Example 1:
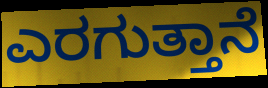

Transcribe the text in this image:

ಎರಗುತ್ತಾನೆ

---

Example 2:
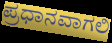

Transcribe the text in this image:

ಪ್ರಧಾನವಾಗಲಿ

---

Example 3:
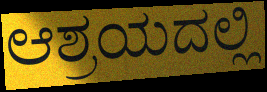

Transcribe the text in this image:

ಆಶ್ರಯದಲ್ಲಿ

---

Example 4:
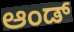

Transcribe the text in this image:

ಆಂಡ್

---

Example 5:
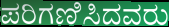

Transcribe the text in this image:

ಪರಿಗಣಿಸಿದವರು